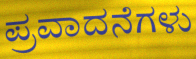
ಪ್ರವಾದನೆಗಳು